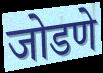
जोडणे